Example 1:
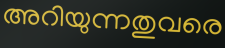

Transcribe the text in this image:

അറിയുന്നതുവരെ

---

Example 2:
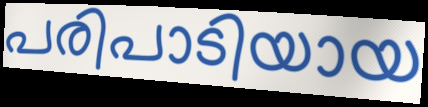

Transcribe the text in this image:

പരിപാടിയായ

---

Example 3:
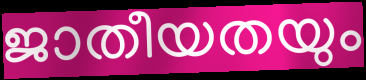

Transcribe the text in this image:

ജാതീയതയും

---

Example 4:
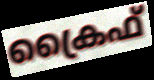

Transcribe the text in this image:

ക്രൈഫ്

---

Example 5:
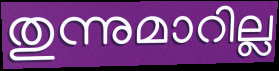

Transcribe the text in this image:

തുന്നുമാറില്ല